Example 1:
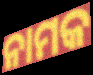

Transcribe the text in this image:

ନାମକ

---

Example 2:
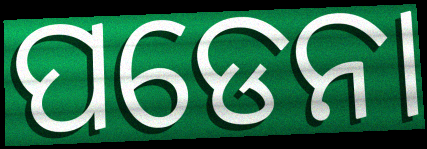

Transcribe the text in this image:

ପଡେନା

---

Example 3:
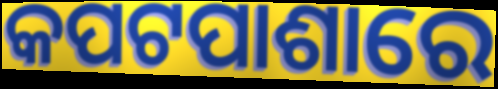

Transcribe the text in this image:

କପଟପାଶାରେ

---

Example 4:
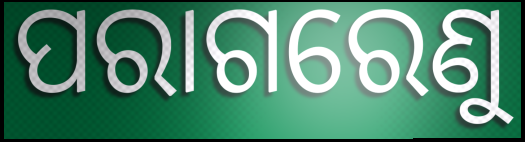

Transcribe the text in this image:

ପରାଗରେଣୁ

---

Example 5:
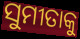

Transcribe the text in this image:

ସୁମୀତାକୁ